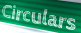
Circulars